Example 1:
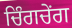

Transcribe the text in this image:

ਚਿੰਗਚੇਂਗ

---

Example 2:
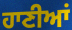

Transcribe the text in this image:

ਹਾਣੀਆਂ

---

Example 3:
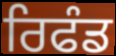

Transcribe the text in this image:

ਰਿਫੰਡ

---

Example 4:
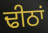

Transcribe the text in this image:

ਢੀਠਾਂ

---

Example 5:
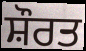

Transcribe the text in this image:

ਸ਼ੌਰਤ